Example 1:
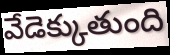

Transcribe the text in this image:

వేడెక్కుతుంది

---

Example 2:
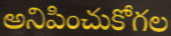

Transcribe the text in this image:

అనిపించుకోగల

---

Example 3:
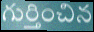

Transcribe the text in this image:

గుర్తించిన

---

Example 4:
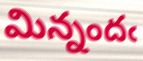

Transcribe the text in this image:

మిన్నందఁ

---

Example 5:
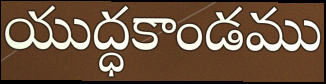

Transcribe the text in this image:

యుద్ధకాండము